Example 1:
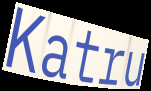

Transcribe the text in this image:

Katru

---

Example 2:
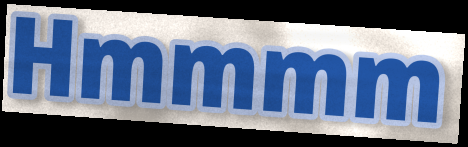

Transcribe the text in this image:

Hmmmm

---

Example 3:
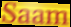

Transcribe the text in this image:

Saam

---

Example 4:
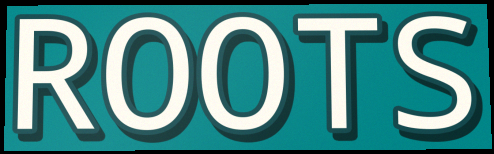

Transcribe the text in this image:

ROOTS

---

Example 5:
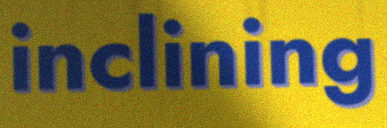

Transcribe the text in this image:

inclining